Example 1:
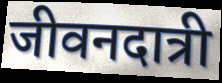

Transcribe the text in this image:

जीवनदात्री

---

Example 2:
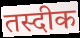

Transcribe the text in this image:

तस्‍दीक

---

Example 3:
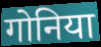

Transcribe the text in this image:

गोनिया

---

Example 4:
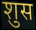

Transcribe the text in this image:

शुस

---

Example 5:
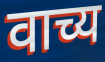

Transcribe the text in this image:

वाच्य